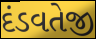
દંડવતેજી